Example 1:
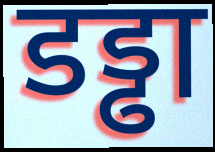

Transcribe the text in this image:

डड्ढा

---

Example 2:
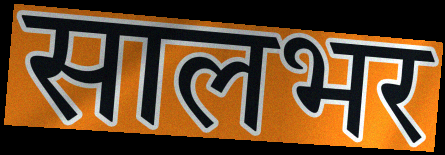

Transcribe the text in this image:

सालभर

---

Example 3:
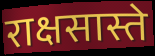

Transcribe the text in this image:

राक्षसास्ते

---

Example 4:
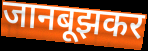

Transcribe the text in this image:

जानबूझकर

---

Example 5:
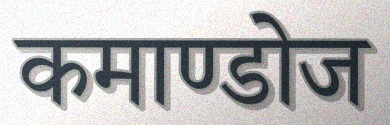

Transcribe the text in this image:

कमाण्डोज